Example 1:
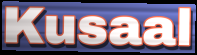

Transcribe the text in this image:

Kusaal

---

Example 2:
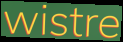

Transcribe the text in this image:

wistre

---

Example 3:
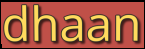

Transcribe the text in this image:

dhaan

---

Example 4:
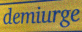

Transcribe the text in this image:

demiurge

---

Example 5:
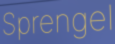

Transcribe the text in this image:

Sprengel